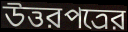
উত্তরপত্রের